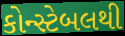
કોન્સ્ટેબલથી